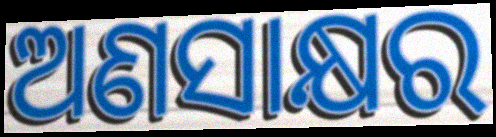
ଅଣସାକ୍ଷର